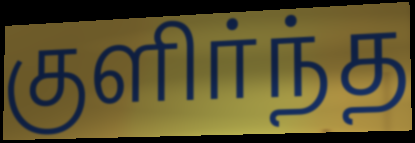
குளிர்ந்த